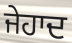
ਜੇਹਾਦ